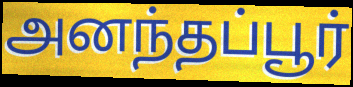
அனந்தப்பூர்